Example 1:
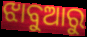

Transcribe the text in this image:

ଝାବୁଆରୁ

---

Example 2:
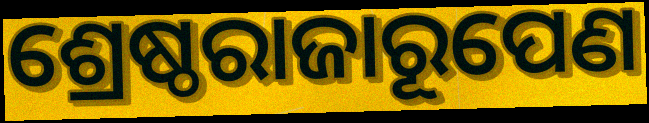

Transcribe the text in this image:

ଶ୍ରେଷ୍ଠରାଜାରୂପେଣ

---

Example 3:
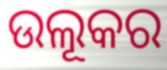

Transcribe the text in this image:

ଉଲୂକର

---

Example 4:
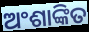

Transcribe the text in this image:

ଅଂଶାଙ୍କିତ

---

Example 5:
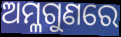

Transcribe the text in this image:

ଅମ୍ଳଗୁଣରେ